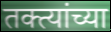
तक्त्यांच्या